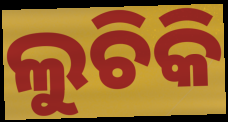
ଲୁଚିକି